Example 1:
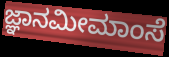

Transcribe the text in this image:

ಜ್ಞಾನಮೀಮಾಂಸೆ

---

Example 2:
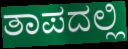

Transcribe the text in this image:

ತಾಪದಲ್ಲಿ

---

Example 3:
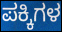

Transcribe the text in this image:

ಪಕ್ಕಿಗಳ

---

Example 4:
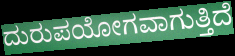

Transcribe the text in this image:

ದುರುಪಯೋಗವಾಗುತ್ತಿದೆ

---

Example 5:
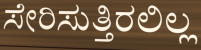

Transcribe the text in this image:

ಸೇರಿಸುತ್ತಿರಲಿಲ್ಲ